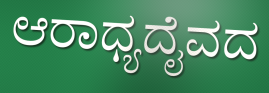
ಆರಾಧ್ಯದೈವದ